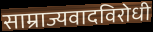
साम्राज्यवादविरोधी